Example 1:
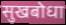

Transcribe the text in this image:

सुखबोधा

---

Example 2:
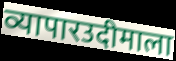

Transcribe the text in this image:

व्यापारउदीमाला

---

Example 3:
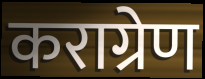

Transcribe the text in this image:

कराग्रेण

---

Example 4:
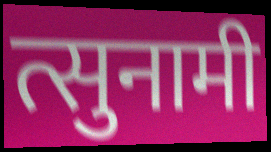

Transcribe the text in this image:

त्सुनामी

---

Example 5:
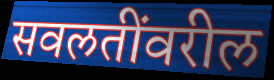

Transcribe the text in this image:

सवलतींवरील